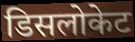
डिसलोकेट